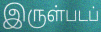
இருள்படப்